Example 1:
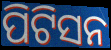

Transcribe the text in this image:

ପିଟିସନ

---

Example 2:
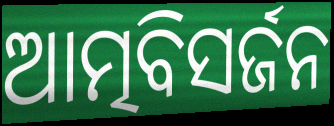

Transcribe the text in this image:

ଆତ୍ମବିସର୍ଜନ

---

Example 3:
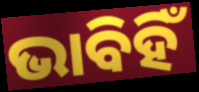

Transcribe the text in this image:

ଭାବିହିଁ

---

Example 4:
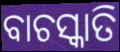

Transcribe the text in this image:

ବାଚସ୍କାତି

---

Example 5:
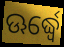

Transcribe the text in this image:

ଊର୍ଦ୍ଧ୍ୱେ